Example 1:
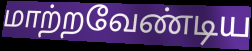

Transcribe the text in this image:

மாற்றவேண்டிய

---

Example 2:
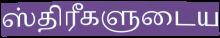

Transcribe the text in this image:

ஸ்திரீகளுடைய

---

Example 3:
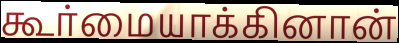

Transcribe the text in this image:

கூர்மையாக்கினான்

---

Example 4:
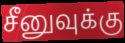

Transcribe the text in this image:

சீனுவுக்கு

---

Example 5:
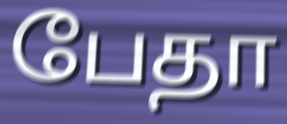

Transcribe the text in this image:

பேதா